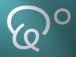
ଢଂ